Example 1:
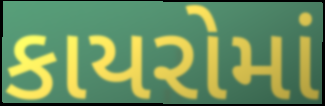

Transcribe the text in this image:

કાયરોમાં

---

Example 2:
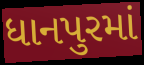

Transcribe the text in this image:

ધાનપુરમાં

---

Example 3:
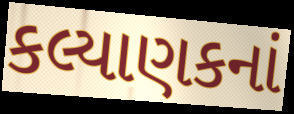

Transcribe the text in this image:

કલ્યાણકનાં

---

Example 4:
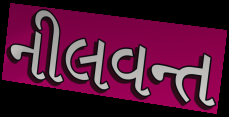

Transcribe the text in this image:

નીલવન્ત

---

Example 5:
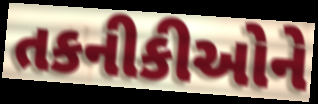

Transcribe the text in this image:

તકનીકીઓને